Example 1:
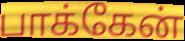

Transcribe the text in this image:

பாக்கேன்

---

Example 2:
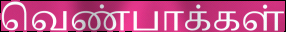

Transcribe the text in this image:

வெண்பாக்கள்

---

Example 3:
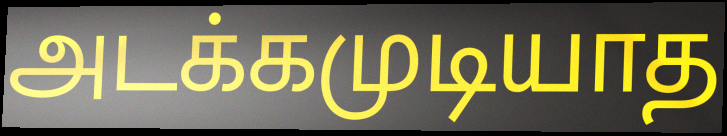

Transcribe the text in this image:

அடக்கமுடியாத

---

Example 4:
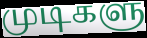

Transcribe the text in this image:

முடிகளு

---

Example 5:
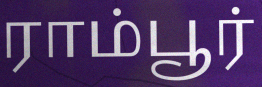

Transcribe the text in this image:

ராம்பூர்